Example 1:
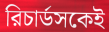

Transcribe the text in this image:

রিচার্ডসকেই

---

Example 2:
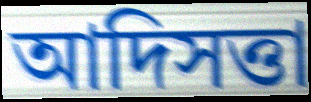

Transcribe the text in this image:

আদিসত্তা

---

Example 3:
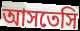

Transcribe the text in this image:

আসতেসি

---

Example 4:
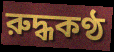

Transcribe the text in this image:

রুদ্ধকণ্ঠ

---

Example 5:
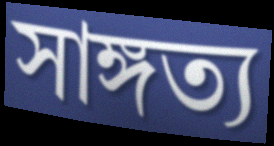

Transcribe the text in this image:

সাঙ্গত্য